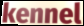
kennel